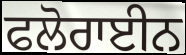
ਫਲੋਰਾਈਨ